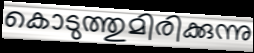
കൊടുത്തുമിരിക്കുന്നു